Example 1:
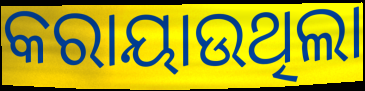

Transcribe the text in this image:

କରାୟାଉଥିଲା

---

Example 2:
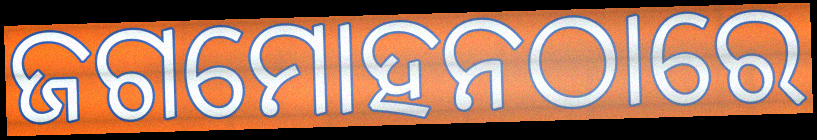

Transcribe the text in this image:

ଜଗମୋହନଠାରେ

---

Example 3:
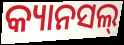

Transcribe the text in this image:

କ୍ୟାନସଲ୍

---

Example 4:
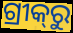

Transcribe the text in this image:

ଗ୍ରୀକ୍‌ରୁ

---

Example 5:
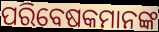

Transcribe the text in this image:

ପରିବେଷକମାନଙ୍କ